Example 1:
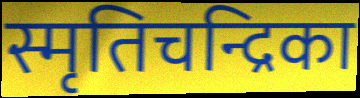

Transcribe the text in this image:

स्मृतिचन्द्रिका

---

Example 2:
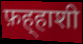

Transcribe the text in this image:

फ़ह्हाशी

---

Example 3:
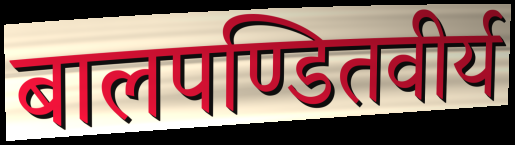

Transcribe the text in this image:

बालपण्डितवीर्य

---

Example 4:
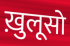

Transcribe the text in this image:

ख़ुलूसो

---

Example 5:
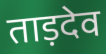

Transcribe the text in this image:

ताड़देव